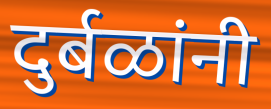
दुर्बळांनी